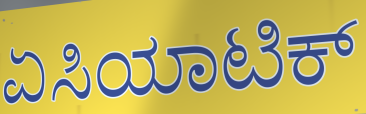
ಏಸಿಯಾಟಿಕ್